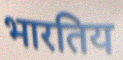
भारतिय